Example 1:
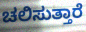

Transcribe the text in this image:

ಚಲಿಸುತ್ತಾರೆ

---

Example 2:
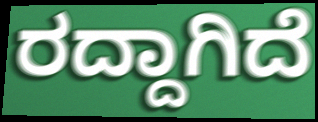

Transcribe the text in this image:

ರದ್ದಾಗಿದೆ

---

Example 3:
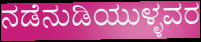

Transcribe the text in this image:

ನಡೆನುಡಿಯುಳ್ಳವರ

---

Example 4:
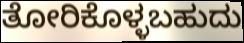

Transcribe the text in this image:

ತೋರಿಕೊಳ್ಳಬಹುದು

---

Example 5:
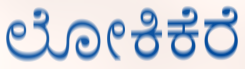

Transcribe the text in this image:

ಲೋಕಿಕೆರೆ